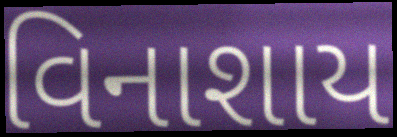
વિનાશાય